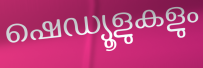
ഷെഡ്യൂളുകളും